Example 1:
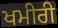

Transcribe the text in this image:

ਖਮੀਰੀ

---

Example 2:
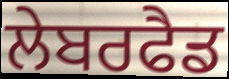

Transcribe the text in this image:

ਲੇਬਰਫੈਡ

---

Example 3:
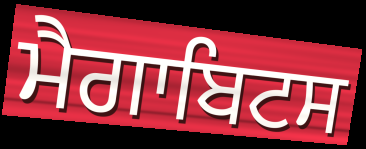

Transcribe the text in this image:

ਮੈਗਾਬਿਟਸ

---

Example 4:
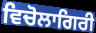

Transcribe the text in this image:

ਵਿਚੋਲਾਗਿਰੀ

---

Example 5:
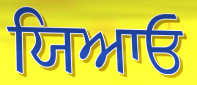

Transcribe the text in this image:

ਯਿਆਓ